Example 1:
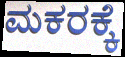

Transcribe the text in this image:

ಮಕರಕ್ಕೆ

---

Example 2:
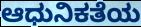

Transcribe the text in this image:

ಆಧುನಿಕತೆಯ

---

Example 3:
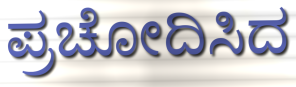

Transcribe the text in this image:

ಪ್ರಚೋದಿಸಿದ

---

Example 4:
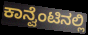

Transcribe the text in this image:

ಕಾನ್ವೆಂಟಿನಲ್ಲಿ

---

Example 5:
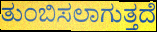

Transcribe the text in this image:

ತುಂಬಿಸಲಾಗುತ್ತದೆ